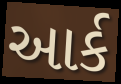
આર્ક